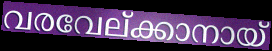
വരവേല്ക്കാനായ്